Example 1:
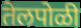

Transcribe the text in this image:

तेलपोळी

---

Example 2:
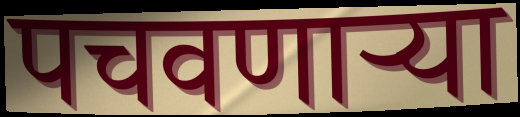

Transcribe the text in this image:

पचवणाऱ्या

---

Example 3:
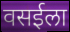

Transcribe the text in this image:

वसईला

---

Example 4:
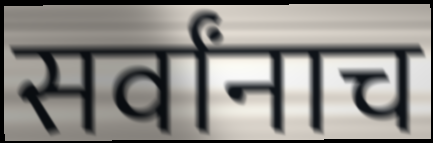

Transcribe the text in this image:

सर्वांनाच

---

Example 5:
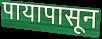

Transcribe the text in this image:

पायापासून